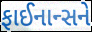
ફાઈનાન્સને